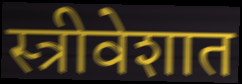
स्त्रीवेशात